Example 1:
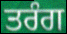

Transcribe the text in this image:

ਤਰੰਗ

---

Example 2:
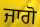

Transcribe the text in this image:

ਜਾਗੋ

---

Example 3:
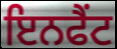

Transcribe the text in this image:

ਇਨਫੈਂਟ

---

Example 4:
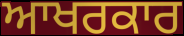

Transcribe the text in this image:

ਆਖਰਕਾਰ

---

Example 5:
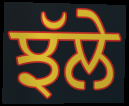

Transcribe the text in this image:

ਝੱਲੇ